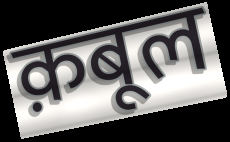
क़बूल